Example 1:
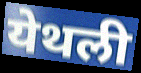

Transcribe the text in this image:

येथली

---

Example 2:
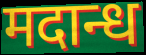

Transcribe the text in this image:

मदान्ध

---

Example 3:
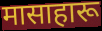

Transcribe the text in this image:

मासाहारू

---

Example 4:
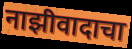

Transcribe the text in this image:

नाझीवादाचा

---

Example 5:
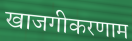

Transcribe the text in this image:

खाजगीकरणाम